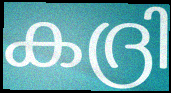
കദ്രി